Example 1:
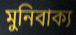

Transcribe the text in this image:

মুনিবাক্য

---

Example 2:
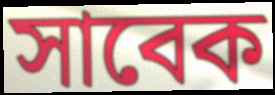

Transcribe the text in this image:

সাবেক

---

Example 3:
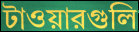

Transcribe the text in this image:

টাওয়ারগুলি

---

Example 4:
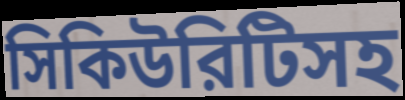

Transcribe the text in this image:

সিকিউরিটিসহ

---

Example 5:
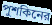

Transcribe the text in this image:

পুশকিনের